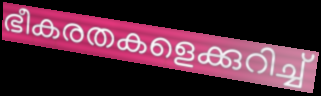
ഭീകരതകളെക്കുറിച്ച്